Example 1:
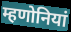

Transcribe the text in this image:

म्हणोनियां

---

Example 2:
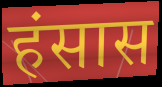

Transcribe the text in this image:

हंसास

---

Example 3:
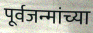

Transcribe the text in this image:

पूर्वजन्मांच्या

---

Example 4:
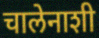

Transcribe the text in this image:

चालेनाशी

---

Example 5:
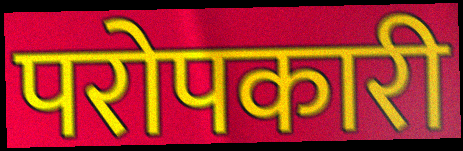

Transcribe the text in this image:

परोपकारी